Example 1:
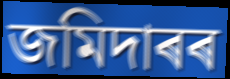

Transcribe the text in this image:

জমিদাৰৰ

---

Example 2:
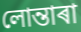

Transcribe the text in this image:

লোন্তাৰা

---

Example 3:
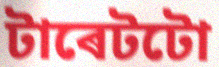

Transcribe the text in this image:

টাৰেটটো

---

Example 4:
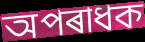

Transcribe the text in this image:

অপৰাধক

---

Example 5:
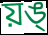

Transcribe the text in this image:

য়ঙ্